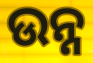
ଉନ୍ନ